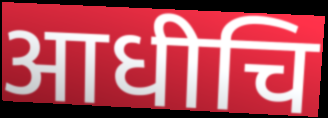
आधीचि